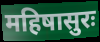
महिषासुरः